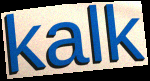
kalk